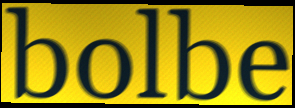
bolbe